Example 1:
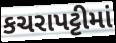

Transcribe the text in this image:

કચરાપટ્ટીમાં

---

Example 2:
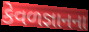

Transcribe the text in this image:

કેવળજ્ઞાનના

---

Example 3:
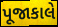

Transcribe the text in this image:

પૂજાકાલે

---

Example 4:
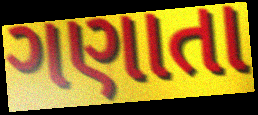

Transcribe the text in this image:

ગણાતા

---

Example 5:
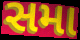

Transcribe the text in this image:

સમા